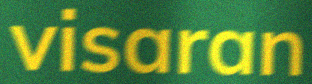
visaran